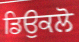
ਡਿਉਕਲੋ